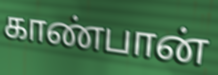
காண்பான்